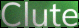
Clute